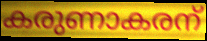
കരുണാകരന്